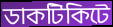
ডাকটিকিটে